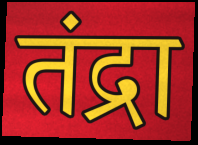
तंद्रा